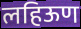
लहिऊण